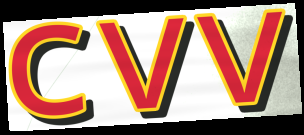
cvv